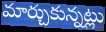
మార్చుకున్నట్లు